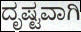
ದೃಷ್ಟವಾಗಿ